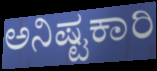
ಅನಿಷ್ಟಕಾರಿ